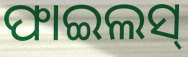
ଫାଇଲସ୍